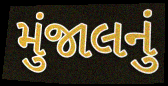
મુંજાલનું